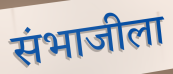
संभाजीला